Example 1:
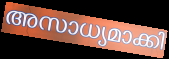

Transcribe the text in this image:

അസാധ്യമാക്കി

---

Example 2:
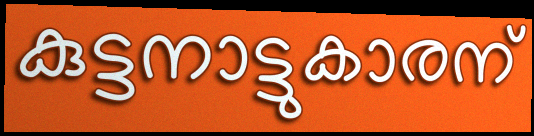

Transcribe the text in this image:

കുട്ടനാട്ടുകാരന്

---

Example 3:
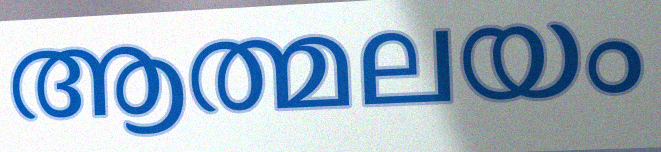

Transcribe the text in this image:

ആത്മലയം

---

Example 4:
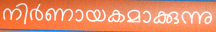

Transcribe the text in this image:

നിർണായകമാക്കുന്നു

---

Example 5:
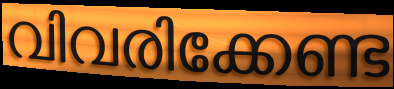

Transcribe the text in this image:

വിവരിക്കേണ്ട